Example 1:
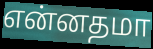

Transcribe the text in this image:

என்னதமா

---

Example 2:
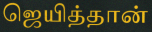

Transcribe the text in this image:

ஜெயித்தான்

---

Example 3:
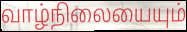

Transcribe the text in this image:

வாழ்நிலையையும்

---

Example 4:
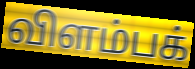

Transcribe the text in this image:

விளம்பக்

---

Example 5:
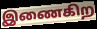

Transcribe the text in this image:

இணைகிற